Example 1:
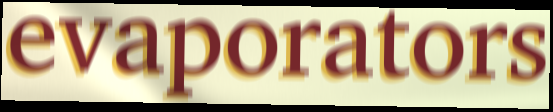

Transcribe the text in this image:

evaporators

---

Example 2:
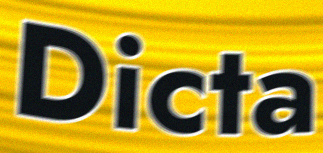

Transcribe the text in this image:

Dicta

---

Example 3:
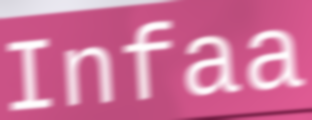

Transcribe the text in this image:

Infaa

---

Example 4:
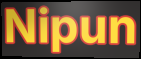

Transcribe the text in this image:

Nipun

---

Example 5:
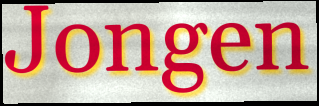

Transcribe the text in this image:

Jongen